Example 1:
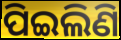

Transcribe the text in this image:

ପିଇଲିଣି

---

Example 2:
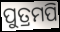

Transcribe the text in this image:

ପୁତ୍ରମପି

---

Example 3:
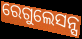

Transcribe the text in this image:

ରେଗୁଲେସନ୍ସ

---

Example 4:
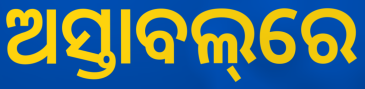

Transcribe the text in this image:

ଅସ୍ତାବଲ୍‌ରେ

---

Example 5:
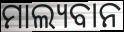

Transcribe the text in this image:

ମାଲ୍ୟବାନ